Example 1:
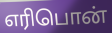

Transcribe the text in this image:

எரிபொன்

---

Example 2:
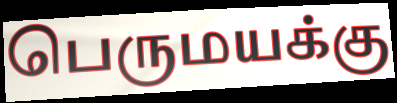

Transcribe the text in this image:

பெருமயக்கு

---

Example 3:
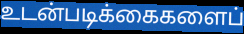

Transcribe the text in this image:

உடன்படிக்கைகளைப்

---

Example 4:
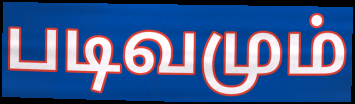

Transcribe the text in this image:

படிவமும்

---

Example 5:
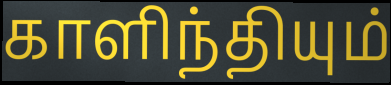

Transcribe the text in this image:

காளிந்தியும்